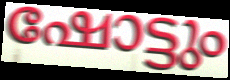
ഷോട്ടും